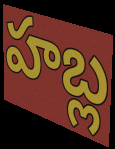
హబ్ల